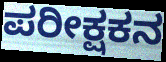
ಪರೀಕ್ಷಕನ